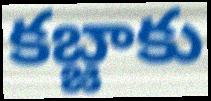
కబ్జాకు